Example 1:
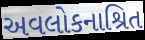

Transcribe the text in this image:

અવલોકનાશ્રિત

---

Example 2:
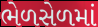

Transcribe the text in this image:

ભેળસેળમાં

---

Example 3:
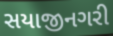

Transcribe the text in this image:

સયાજીનગરી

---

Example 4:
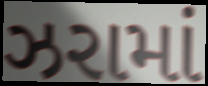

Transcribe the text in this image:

ઝરામાં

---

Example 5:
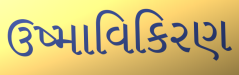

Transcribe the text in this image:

ઉષ્માવિકિરણ